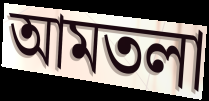
আমতলা